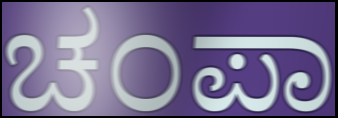
ಚಂಪಾ